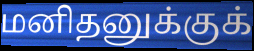
மனிதனுக்குக்